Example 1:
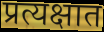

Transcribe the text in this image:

प्रत्यक्षात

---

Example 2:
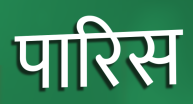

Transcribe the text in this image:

पारिस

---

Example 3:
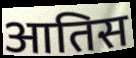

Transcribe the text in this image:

आतिस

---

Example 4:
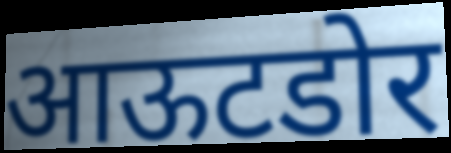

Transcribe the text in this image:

आऊटडोर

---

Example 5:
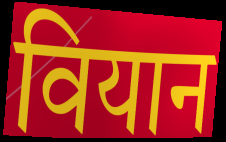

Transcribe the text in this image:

वियान